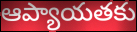
ఆప్యాయతకు